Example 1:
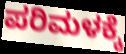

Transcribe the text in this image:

ಪರಿಮಳಕ್ಕೆ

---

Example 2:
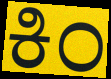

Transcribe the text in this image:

ಕಿಂ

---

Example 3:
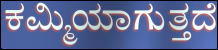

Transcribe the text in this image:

ಕಮ್ಮಿಯಾಗುತ್ತದೆ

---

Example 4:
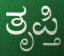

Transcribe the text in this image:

ತೃಪ್ತಿ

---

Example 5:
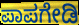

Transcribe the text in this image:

ಪಾಪಗೇಡಿ